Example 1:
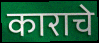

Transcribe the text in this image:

काराचे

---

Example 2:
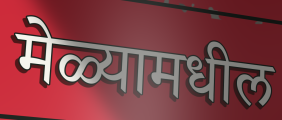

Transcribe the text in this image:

मेळ्यामधील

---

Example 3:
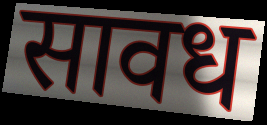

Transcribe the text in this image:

सावध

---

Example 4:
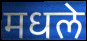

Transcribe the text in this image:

मधले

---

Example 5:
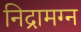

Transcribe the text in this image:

निद्रामग्न